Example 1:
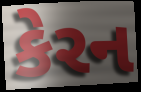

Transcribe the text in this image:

કેરન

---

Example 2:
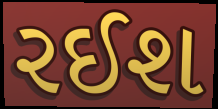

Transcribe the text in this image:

રઈશ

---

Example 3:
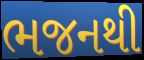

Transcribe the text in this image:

ભજનથી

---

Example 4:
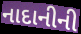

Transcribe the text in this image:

નાદાનીની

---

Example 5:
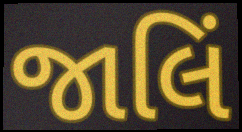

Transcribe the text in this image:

જાલિં